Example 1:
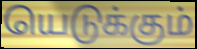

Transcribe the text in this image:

யெடுக்கும்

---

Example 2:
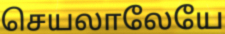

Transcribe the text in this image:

செயலாலேயே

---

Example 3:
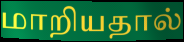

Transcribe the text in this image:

மாறியதால்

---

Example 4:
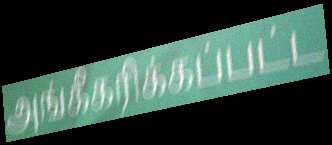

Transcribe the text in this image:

அங்கீகரிக்கப்பட்ட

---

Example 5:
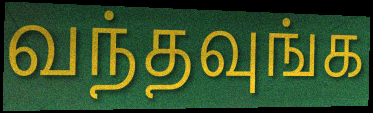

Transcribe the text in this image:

வந்தவுங்க